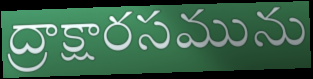
ద్రాక్షారసమును